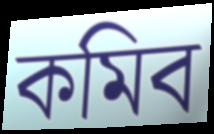
কমিব